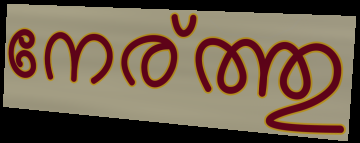
നേര്ത്തു